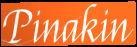
Pinakin